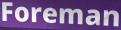
Foreman